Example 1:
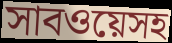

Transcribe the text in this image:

সাবওয়েসহ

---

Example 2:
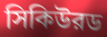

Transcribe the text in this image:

সিকিউরড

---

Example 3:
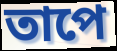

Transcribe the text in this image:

তাপে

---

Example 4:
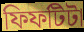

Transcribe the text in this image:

ফিফটিটা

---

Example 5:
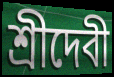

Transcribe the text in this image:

শ্রীদেবী